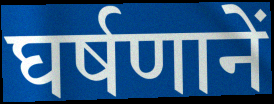
घर्षणानें